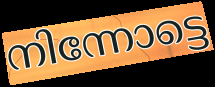
നിന്നോട്ടെ